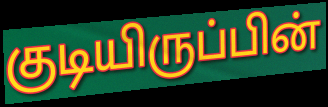
குடியிருப்பின்